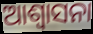
ଆଶ୍ୱାସନା